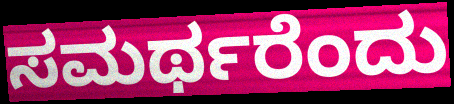
ಸಮರ್ಥರೆಂದು